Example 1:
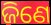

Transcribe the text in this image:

ଜିଣେ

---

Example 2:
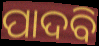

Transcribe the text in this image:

ପାଦବି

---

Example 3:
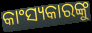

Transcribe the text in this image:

କାଂସ୍ୟକାରଙ୍କୁ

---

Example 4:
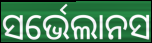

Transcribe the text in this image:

ସର୍ଭେଲାନସ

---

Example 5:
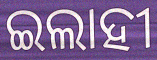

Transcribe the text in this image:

ଇଲାହୀ